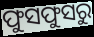
ଫୁସଫୁସରୁ